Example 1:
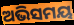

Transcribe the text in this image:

ଅଭିସମୟ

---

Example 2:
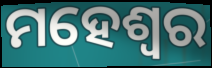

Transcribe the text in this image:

ମହେଶ୍ଵର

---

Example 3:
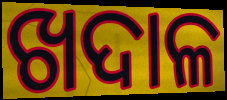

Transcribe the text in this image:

ଖଦାଳ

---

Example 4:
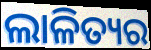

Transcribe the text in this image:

ଲାଳିତ୍ୟର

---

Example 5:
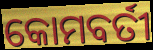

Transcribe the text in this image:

କୋମବର୍ତୀ